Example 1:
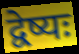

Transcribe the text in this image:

द्वेष्यः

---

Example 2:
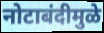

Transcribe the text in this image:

नोटाबंदीमुळे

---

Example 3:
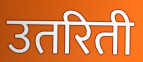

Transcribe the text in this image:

उतरिती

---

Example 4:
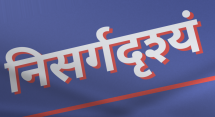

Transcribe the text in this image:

निसर्गदृश्यं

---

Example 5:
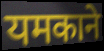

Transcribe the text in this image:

यमकाने